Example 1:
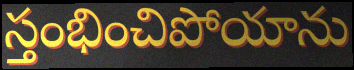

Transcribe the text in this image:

స్తంభించిపోయాను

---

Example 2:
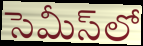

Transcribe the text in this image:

సెమీస్‌లో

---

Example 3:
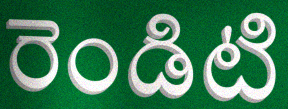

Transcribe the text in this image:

రెండిటి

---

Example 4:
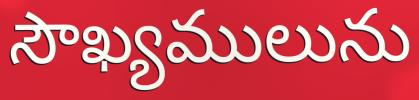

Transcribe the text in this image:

సౌఖ్యములును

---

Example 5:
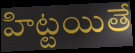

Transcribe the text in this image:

హిట్టయితే